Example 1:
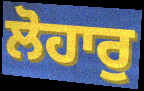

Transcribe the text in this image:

ਲੋਹਾਰੁ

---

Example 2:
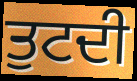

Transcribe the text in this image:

ਤੁਟਦੀ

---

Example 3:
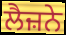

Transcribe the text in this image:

ਲੈਜ਼ਨੇ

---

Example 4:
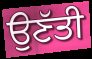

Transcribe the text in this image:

ਉਣੱਤੀ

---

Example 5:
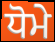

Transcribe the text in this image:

ਧੋਮੇ